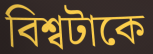
বিশ্বটাকে